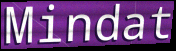
Mindat